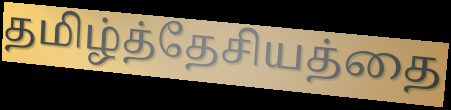
தமிழ்த்தேசியத்தை